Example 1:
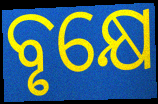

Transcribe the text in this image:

ବୃକ୍ଷେ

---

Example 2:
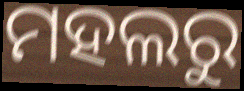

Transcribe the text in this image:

ମହଲରୁ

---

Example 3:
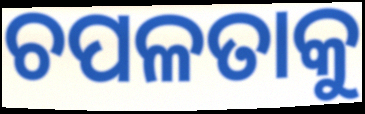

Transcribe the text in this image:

ଚପଳତାକୁ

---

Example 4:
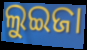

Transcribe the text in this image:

ଲୁଇଜା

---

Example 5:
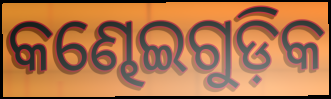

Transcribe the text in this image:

କଣ୍ଢେଇଗୁଡ଼ିକ